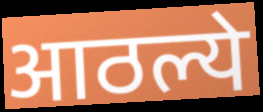
आठल्ये